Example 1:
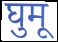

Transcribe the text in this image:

घुमू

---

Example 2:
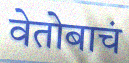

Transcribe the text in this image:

वेतोबाचं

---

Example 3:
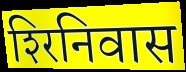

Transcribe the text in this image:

श्रिनिवास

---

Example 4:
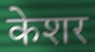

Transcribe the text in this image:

केशर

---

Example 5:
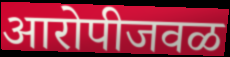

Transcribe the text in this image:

आरोपीजवळ